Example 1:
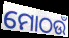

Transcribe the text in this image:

ମୋଠଉଁ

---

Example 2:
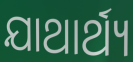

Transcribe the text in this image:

ଯାଥାର୍ଥ୍ୟ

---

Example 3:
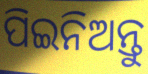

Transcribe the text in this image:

ପିଇନିଅନ୍ତୁ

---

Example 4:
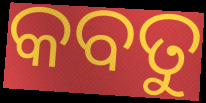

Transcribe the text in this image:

କବତୁ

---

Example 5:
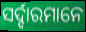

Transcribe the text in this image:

ସର୍ଦ୍ଦାରମାନେ